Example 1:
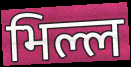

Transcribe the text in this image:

भिल्ल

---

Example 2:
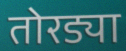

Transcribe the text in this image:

तोरड्या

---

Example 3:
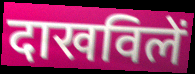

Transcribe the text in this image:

दाखविलें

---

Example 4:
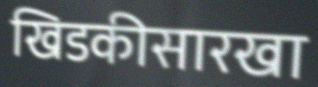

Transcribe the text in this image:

खिडकीसारखा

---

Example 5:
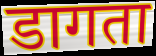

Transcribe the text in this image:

डागता